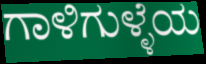
ಗಾಳಿಗುಳ್ಳೆಯ